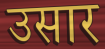
उसार